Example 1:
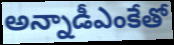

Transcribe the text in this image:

అన్నాడీఎంకేతో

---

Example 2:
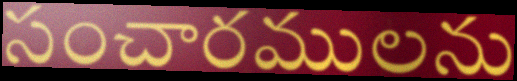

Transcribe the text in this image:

సంచారములను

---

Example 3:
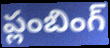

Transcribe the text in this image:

ప్లంబింగ్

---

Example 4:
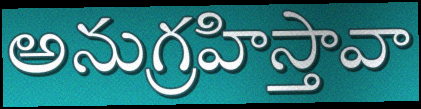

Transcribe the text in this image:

అనుగ్రహిస్తావా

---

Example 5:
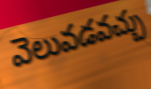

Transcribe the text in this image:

వెలువడవచ్చు